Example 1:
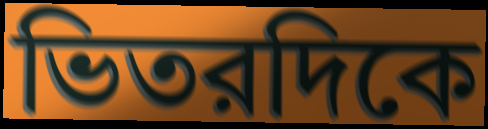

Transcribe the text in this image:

ভিতরদিকে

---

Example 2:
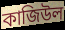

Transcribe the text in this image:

কাজিউল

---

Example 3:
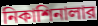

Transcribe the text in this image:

নিকাশিনালার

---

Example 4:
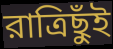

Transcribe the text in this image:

রাত্রিছুঁই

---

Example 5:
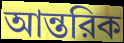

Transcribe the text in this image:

আন্তরিক